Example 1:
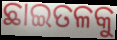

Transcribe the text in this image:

ଛାଇତଳକୁ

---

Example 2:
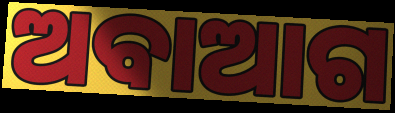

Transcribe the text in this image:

ଅବାଆଗ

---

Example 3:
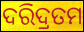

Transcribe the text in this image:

ଦରିଦ୍ରତମ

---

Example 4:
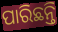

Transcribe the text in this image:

ପାରିଛନ୍ତି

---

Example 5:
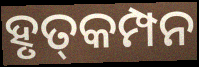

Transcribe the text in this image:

ହୃତ୍‌କମ୍ପନ